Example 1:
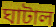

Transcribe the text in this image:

ঘাটাল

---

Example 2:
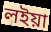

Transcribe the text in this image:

লইয়া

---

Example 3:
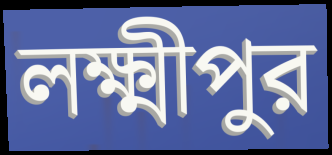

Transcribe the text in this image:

লক্ষ্মীপুর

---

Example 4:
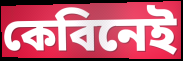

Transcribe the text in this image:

কেবিনেই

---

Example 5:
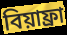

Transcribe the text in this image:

বিয়াফ্রা